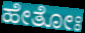
ಹೇತೋಃ